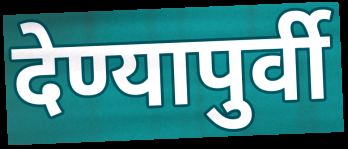
देण्यापुर्वी